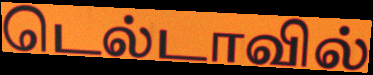
டெல்டாவில்